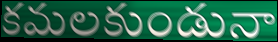
కమలకుండునా